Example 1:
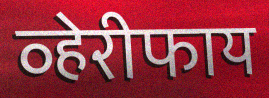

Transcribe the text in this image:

व्हेरीफाय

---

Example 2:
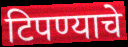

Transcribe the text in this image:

टिपण्याचे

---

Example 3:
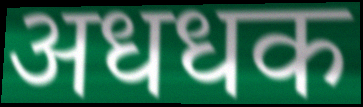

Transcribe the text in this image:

अधधक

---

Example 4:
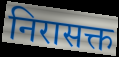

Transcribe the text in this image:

निरासक्त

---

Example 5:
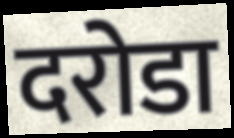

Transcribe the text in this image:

दरोडा